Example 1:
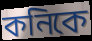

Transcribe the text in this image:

কনিকে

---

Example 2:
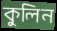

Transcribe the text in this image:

কুলিন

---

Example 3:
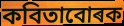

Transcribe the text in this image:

কবিতাবোৰক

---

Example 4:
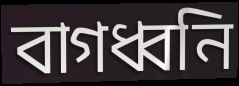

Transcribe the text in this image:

বাগধ্বনি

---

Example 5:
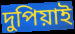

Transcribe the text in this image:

দুপিয়াই